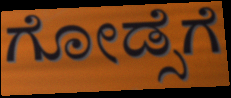
ಗೋಡ್ಸೆಗೆ